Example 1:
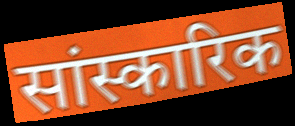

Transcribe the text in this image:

सांस्कारिक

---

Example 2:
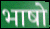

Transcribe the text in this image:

भाषो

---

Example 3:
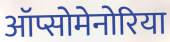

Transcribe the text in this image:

ऑप्सोमेनोरिया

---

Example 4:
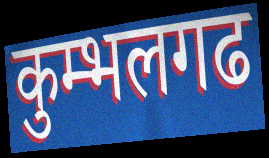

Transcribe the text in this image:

कुम्भलगढ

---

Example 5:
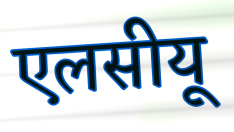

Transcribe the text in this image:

एलसीयू